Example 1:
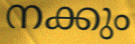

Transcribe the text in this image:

നക്കും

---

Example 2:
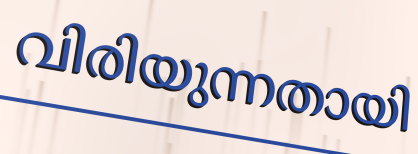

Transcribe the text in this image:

വിരിയുന്നതായി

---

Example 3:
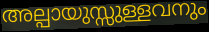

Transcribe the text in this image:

അല്പായുസ്സുള്ളവനും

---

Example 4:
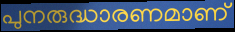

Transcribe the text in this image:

പുനരുദ്ധാരണമാണ്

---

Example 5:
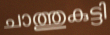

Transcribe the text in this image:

ചാത്തുകുട്ടി